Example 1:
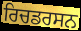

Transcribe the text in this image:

ਰਿਚਡਰਸਨ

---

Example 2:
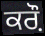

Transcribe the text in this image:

ਕਰ਼ੌ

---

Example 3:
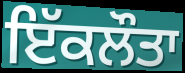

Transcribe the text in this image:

ਇੱਕਲੌਤਾ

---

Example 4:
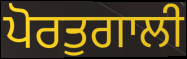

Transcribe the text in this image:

ਪੋਰਤੁਗਾਲੀ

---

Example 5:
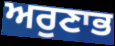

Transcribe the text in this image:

ਅਰੁਣਾਭ